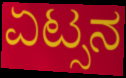
ಏಟ್ಸನ